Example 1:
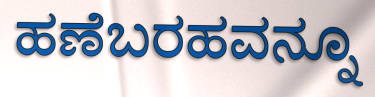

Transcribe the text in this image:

ಹಣೆಬರಹವನ್ನೂ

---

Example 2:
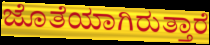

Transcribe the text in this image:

ಜೊತೆಯಾಗಿರುತ್ತಾರೆ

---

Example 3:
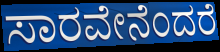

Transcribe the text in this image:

ಸಾರವೇನೆಂದರೆ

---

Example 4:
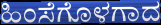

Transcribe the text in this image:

ಹಿಂಸೆಗೊಳಗಾದ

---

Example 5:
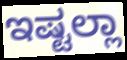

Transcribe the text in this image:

ಇಷ್ಟಲ್ಲಾ